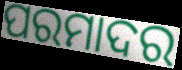
ପରମାଦର